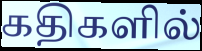
கதிகளில்